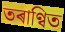
তৰাণ্বিত